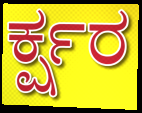
ರ್ಕ್ಷರ